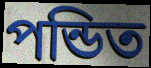
পন্ডিত